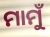
ମାମୁଁ